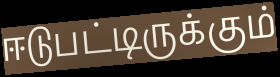
ஈடுபட்டிருக்கும்